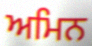
ਅਮਿਨ